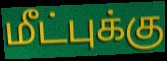
மீட்புக்கு